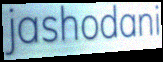
jashodani